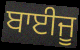
ਬਾਈਜੂ